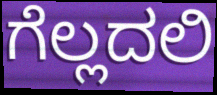
ಗೆಲ್ಲದಲಿ